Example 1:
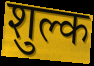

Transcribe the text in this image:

शुल्क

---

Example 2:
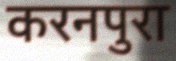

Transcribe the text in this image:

करनपुरा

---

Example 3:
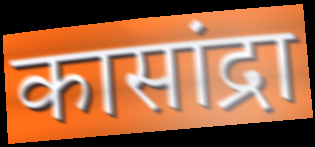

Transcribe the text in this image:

कासांद्रा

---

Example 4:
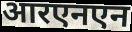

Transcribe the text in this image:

आरएनएन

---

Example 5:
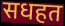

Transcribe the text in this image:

सधहत